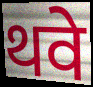
थवे